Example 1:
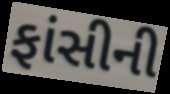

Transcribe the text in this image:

ફાંસીની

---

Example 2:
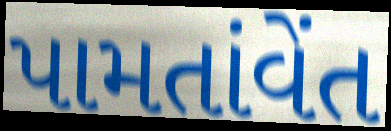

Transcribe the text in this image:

પામતાંવેંત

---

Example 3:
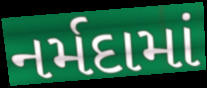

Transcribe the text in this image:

નર્મદામાં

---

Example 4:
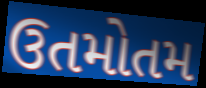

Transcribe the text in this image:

ઉતમોતમ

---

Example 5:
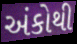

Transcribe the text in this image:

અંકોથી